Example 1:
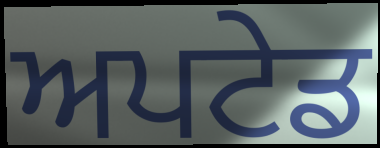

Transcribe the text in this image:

ਅਪਟੇਡ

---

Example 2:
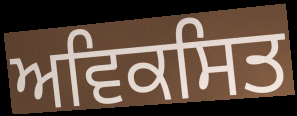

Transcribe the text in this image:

ਅਵਿਕਸਿਤ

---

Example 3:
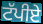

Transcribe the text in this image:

ਟੱਪੀਏ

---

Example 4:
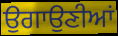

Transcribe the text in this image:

ਉਗਾਉਣੀਆਂ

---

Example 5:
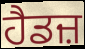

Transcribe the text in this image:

ਹੈਡਜ਼